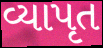
વ્યાપૃત